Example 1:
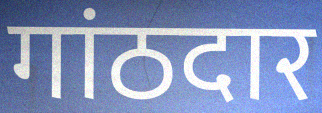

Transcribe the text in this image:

गांठदार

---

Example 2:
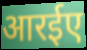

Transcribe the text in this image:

आरईए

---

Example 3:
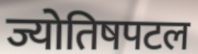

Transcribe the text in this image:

ज्योतिषपटल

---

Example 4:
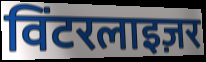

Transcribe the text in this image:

विंटरलाइज़र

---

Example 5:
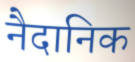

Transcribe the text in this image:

नैदानिक